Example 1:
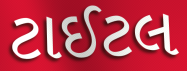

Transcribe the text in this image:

ટાઈટલ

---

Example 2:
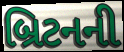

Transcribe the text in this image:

બ્રિટનની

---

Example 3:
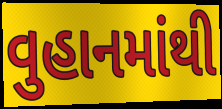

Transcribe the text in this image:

વુહાનમાંથી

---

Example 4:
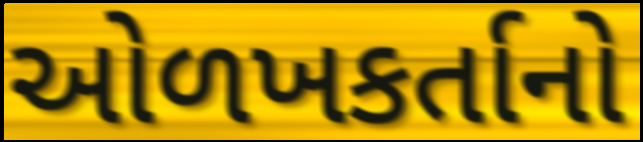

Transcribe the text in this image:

ઓળખકર્તાનો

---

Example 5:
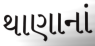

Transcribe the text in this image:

થાણાનાં